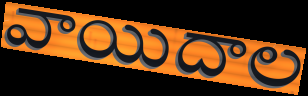
వాయిదాల